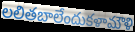
లలితబాలేందుకళామౌళి